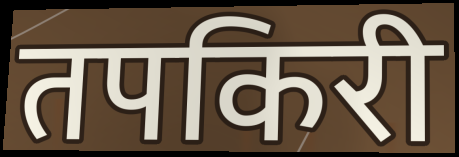
तपकिरी